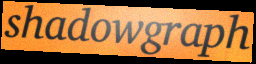
shadowgraph